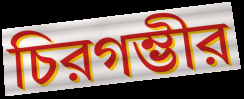
চিরগম্ভীর